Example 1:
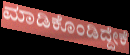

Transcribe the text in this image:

ಮಾಡಿಕೊಂಡಿದ್ದೇಕೆ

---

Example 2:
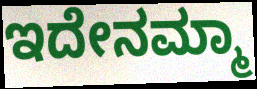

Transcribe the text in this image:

ಇದೇನಮ್ಮಾ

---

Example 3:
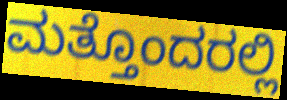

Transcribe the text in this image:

ಮತ್ತೊಂದರಲ್ಲಿ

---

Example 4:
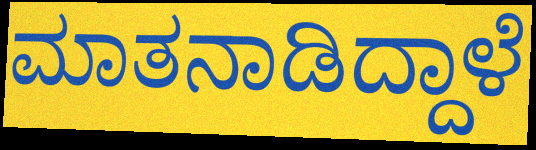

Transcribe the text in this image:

ಮಾತನಾಡಿದ್ದಾಳೆ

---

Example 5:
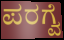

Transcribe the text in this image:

ಪರಗ್ವೆ